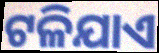
ଟଳିଯାଏ